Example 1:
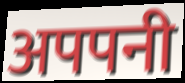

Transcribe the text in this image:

अपपनी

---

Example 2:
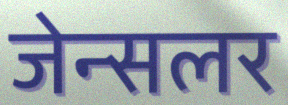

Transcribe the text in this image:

जेन्सलर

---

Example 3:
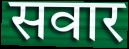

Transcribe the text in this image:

सवार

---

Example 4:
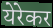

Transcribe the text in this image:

येरेकर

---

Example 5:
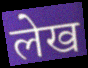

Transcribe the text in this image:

लेख